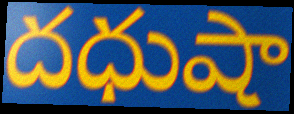
దధుషా